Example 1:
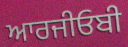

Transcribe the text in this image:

ਆਰਜੀਓਬੀ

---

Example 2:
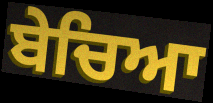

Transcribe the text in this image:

ਬੇਚਿਆ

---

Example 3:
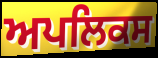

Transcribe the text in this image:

ਅਪਲਿਕਸ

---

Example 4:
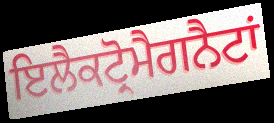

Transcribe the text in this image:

ਇਲੈਕਟ੍ਰੋਮੈਗਨੈਟਾਂ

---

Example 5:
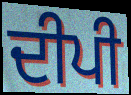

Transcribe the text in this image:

ਦੀਪੀ